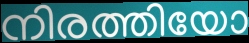
നിരത്തിയോ